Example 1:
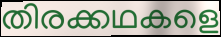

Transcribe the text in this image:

തിരക്കഥകളെ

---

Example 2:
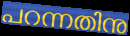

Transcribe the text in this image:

പറന്നതിനു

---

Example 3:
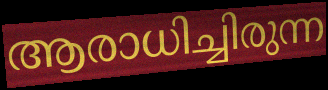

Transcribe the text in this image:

ആരാധിച്ചിരുന്ന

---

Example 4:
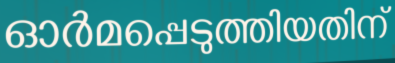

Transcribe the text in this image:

ഓർമപ്പെടുത്തിയതിന്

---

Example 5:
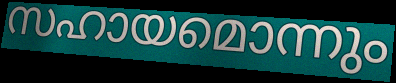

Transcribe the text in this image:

സഹായമൊന്നും